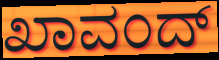
ಖಾವಂದ್